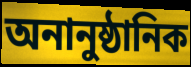
অনানুষ্ঠানিক